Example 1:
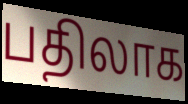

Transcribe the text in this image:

பதிலாக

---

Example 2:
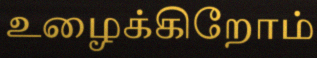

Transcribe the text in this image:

உழைக்கிறோம்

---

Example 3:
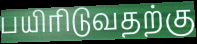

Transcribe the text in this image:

பயிரிடுவதற்கு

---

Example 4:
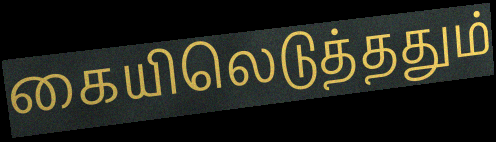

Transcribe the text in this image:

கையிலெடுத்ததும்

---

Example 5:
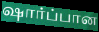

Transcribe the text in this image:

ஷார்ப்பான